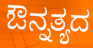
ಔನ್ನತ್ಯದ